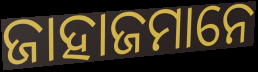
ଜାହାଜମାନେ